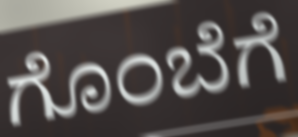
ಗೊಂಬೆಗೆ